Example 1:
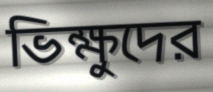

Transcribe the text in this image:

ভিক্ষুদের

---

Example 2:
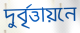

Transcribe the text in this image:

দুর্বৃত্তায়নে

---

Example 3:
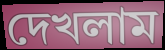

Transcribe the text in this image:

দেখলাম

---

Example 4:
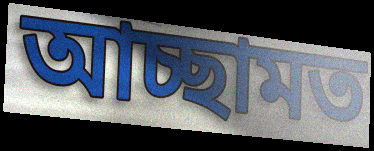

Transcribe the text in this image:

আচ্ছামত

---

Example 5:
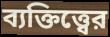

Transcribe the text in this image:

ব্যক্তিত্ত্বের